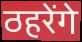
ठहरेंगे